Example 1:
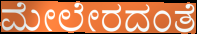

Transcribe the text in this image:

ಮೇಲೇರದಂತೆ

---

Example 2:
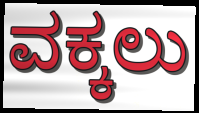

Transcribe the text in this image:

ವಕ್ಕಲು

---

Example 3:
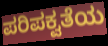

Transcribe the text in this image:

ಪರಿಪಕ್ವತೆಯ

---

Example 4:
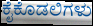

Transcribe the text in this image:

ಕೈಕೊಡಲಿಗಳು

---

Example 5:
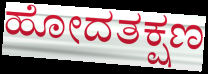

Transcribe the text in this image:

ಹೋದತಕ್ಷಣ